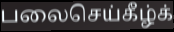
பலைசெய்கீழ்க்